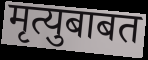
मृत्युबाबत